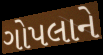
ગોપલાને